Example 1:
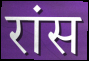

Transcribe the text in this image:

रांस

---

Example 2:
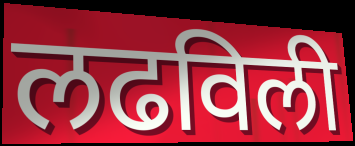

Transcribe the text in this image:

लढविली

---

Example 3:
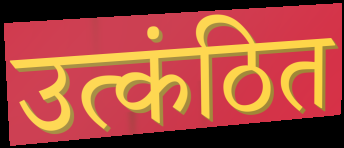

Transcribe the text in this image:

उत्कंठित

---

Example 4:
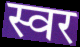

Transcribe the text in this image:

स्वर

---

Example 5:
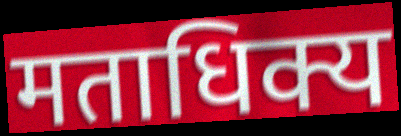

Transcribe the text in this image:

मताधिक्य